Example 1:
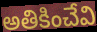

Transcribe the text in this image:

అతికించేవి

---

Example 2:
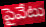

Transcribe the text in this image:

పైవేటు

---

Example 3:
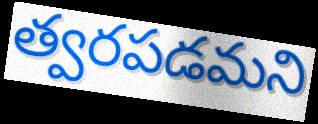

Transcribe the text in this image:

త్వరపడమని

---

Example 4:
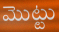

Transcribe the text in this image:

మొట్టు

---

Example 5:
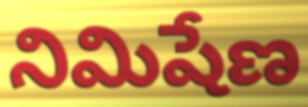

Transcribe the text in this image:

నిమిషేణ